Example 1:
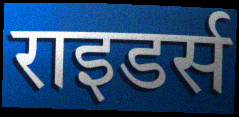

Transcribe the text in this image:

राइडर्स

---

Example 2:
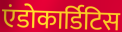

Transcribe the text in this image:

एंडोकार्डिटिस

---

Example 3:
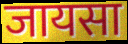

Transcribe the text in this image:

जायसा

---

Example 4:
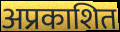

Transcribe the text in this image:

अप्रकाशित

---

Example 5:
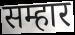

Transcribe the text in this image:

सम्हार